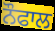
ਨੌਫਾਲ